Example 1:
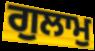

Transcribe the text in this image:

ਗੁਲਾਮੁ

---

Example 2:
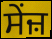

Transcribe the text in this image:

ਸੇਂਜ਼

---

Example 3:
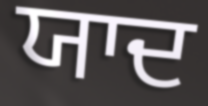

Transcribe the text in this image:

ਯਾਦ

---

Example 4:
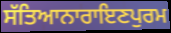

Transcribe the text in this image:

ਸੱਤਿਆਨਾਰਾਇਣਪੁਰਮ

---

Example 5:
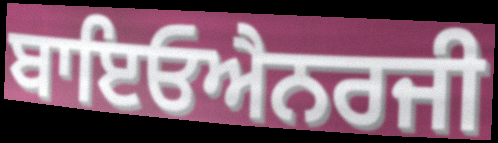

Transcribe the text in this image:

ਬਾਇਓਐਨਰਜੀ